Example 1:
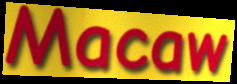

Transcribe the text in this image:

Macaw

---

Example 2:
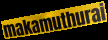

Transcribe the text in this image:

makamuthurai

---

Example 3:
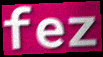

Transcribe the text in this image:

fez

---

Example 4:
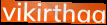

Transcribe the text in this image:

vikirthaa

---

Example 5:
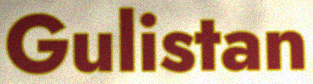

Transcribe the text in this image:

Gulistan